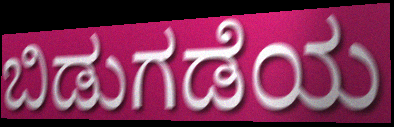
ಬಿಡುಗಡೆಯ